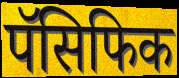
पॅसिफिक